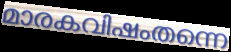
മാരകവിഷംതന്നെ